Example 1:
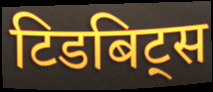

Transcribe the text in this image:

टिडबिट्स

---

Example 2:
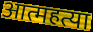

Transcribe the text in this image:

आत्महत्या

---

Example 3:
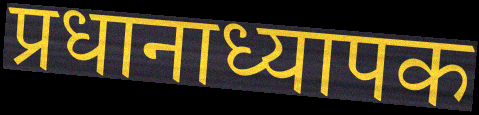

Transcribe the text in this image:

प्रधानाध्यापक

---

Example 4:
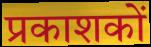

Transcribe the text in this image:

प्रकाशकों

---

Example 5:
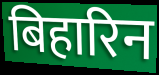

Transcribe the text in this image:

बिहारिन